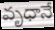
వృధానే